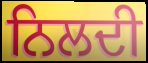
ਨਿਲਦੀ